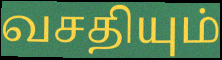
வசதியும்